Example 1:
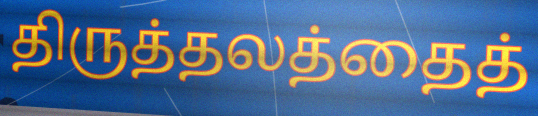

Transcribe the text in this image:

திருத்தலத்தைத்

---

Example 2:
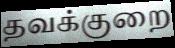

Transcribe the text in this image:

தவக்குறை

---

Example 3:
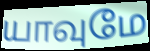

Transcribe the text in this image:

யாவுமே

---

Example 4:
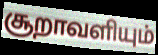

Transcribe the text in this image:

சூறாவளியும்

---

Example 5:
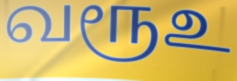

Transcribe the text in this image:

வரூஉ